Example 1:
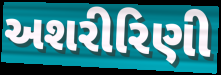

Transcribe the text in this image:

અશરીરિણી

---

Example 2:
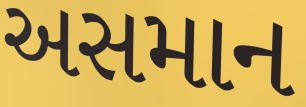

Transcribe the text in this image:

અસમાન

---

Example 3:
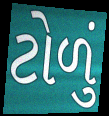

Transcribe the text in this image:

ટોળું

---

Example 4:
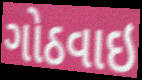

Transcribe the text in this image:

ગોઠવાઇ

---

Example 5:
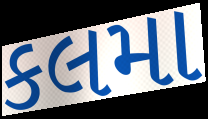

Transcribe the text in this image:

કલમા